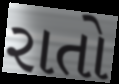
રાતો